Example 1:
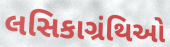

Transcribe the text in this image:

લસિકાગ્રંથિઓ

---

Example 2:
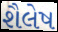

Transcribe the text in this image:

શૈલેષ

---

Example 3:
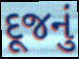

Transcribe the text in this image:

દૂજનું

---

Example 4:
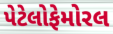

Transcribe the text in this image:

પેટેલોફેમોરલ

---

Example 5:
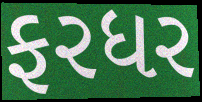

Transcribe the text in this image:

ફરધર